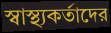
স্বাস্থ্যকর্তাদের